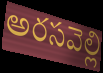
అరసవెల్లి